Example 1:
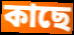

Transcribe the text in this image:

কাছে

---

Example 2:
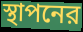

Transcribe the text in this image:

স্থাপনের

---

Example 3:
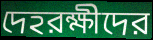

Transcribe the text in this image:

দেহরক্ষীদের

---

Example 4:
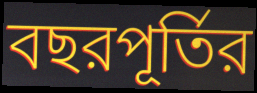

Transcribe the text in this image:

বছরপূর্তির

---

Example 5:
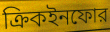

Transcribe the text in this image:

ক্রিকইনফোর